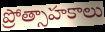
ప్రోత్సాహకాలు